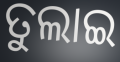
ତୁଲାଇ